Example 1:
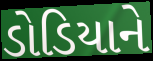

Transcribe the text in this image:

ડોડિયાને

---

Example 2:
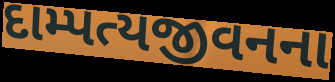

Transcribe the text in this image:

દામ્પત્યજીવનના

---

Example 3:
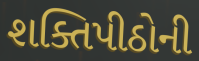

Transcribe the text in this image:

શક્તિપીઠોની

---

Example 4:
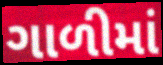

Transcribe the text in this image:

ગાળીમાં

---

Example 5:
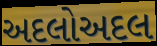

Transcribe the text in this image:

અદલોઅદલ